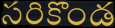
సరికొండ